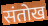
संतोख